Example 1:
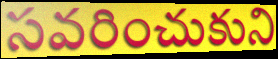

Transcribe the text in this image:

సవరించుకుని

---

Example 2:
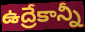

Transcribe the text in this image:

ఉద్రేకాన్నీ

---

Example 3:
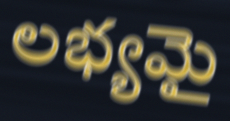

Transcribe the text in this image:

లభ్యమై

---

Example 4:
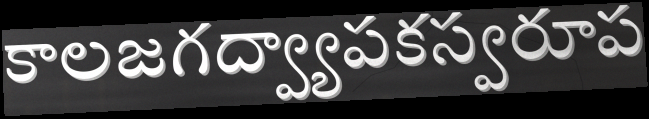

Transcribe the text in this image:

కాలజగద్వ్యాపకస్వరూప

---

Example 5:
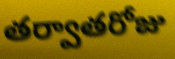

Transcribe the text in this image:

తర్వాతరోజు